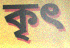
কৃৎ